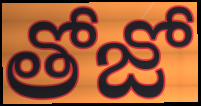
తోజో